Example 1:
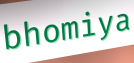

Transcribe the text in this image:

bhomiya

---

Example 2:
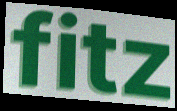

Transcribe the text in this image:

fitz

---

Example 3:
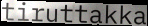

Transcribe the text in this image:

tiruttakka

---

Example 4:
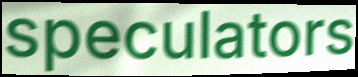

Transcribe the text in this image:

speculators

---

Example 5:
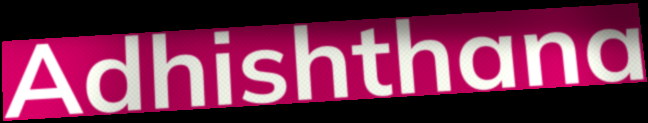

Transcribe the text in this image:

Adhishthana